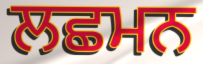
ਲਛਮਨ